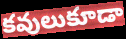
కవులుకూడా